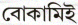
বোকামিই